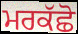
ਮਰਕੱਛੋ